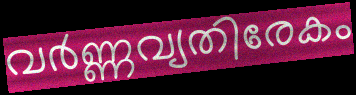
വർണ്ണവ്യതിരേകം